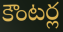
కౌంటర్ల